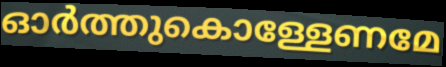
ഓർത്തുകൊള്ളേണമേ